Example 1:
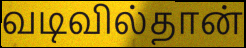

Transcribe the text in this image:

வடிவில்தான்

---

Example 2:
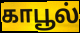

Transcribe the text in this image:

காபூல்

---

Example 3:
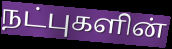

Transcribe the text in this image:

நட்புகளின்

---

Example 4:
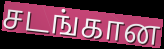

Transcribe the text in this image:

சடங்கான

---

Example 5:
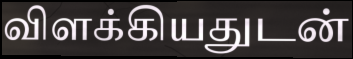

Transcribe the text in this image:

விளக்கியதுடன்